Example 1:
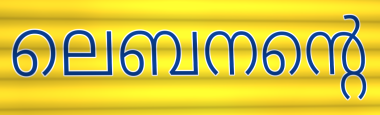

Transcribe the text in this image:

ലെബനന്റെ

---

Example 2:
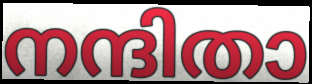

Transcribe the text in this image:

നന്ദിതാ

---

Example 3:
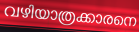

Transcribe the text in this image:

വഴിയാത്രക്കാരനെ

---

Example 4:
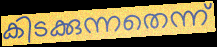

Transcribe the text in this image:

കിടക്കുന്നതെന്ന്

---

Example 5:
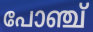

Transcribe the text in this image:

പോഞ്ച്